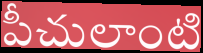
పీచులాంటి